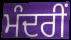
ਮੰਦਰੀਂ